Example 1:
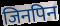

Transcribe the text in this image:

जिनपिन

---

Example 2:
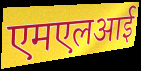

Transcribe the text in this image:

एमएलआई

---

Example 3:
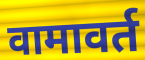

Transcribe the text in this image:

वामावर्त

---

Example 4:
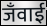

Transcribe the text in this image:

जँवाई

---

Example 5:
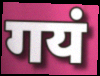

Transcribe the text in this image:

गयं